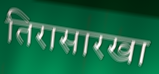
तिरासारखा